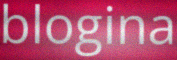
blogina